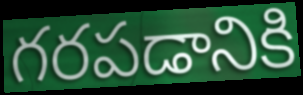
గరపడానికి